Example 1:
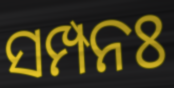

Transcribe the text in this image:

ସମ୍ପନଃ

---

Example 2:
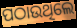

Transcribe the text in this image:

ପଠାଉଥିଲେ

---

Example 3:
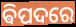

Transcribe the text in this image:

ଵିପଦରେ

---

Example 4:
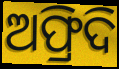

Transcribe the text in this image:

ଅଫ୍ରିଦି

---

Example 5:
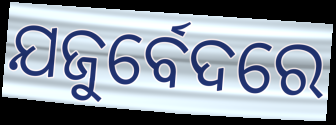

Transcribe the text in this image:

ଯଜୁର୍ବେଦରେ